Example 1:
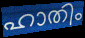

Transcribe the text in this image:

ഹാതിം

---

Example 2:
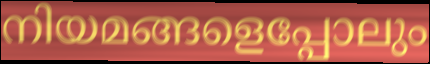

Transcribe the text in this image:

നിയമങ്ങളെപ്പോലും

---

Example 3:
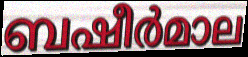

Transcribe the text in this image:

ബഷീർമാല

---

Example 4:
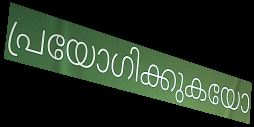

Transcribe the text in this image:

പ്രയോഗിക്കുകയോ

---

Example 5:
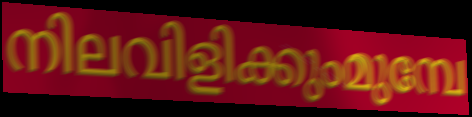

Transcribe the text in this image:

നിലവിളിക്കുംമുമ്പേ